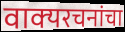
वाक्यरचनांचा